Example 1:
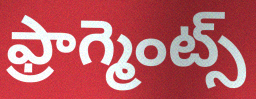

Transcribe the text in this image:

ఫ్రాగ్మెంట్స్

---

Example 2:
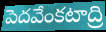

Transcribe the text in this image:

పెదవేంకటాద్రి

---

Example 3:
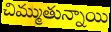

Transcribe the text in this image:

చిమ్ముతున్నాయి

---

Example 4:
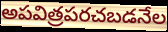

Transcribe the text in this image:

అపవిత్రపరచబడనేల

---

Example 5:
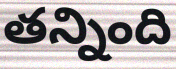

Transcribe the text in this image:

తన్నింది